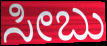
ಸೀಬು